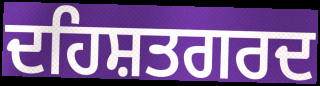
ਦਹਿਸ਼ਤਗਰਦ